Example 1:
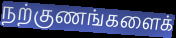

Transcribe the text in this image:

நற்குணங்களைக்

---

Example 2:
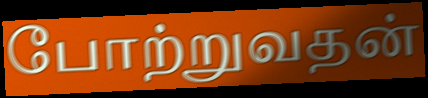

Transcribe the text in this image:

போற்றுவதன்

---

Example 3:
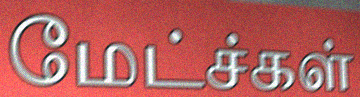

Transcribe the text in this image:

மேட்ச்கள்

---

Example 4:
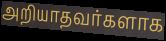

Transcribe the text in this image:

அறியாதவர்களாக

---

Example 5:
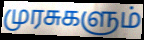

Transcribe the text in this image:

முரசுகளும்